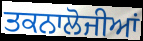
ਤਕਨਾਲੋਜੀਆਂ